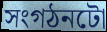
সংগঠনটো